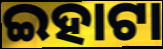
ଇହାଟା